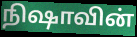
நிஷாவின்